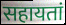
सहायतां